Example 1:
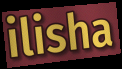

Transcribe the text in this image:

ilisha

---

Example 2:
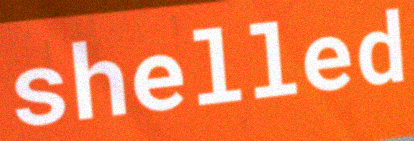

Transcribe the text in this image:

shelled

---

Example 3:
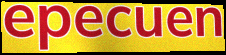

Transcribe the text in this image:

epecuen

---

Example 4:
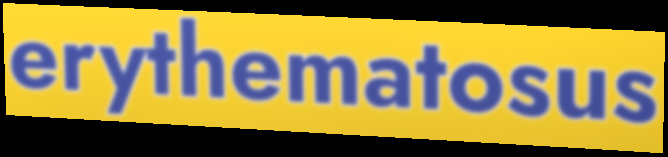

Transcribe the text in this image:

erythematosus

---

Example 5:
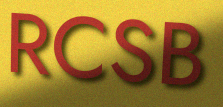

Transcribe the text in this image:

RCSB